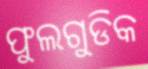
ଫୁଲଗୁଡିକ